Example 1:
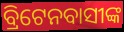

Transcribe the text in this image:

ବ୍ରିଟେନବାସୀଙ୍କ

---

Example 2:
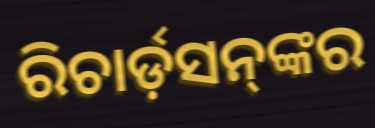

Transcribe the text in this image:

ରିଚାର୍ଡ଼ସନ୍‌ଙ୍କର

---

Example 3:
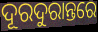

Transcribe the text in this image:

ଦୂରଦୁରାନ୍ତରେ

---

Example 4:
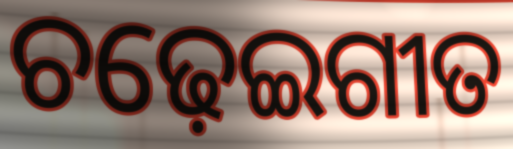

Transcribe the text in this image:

ଚଢ଼େଇଗୀତ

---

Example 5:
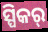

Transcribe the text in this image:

ସ୍ପିକର୍